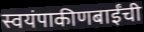
स्वयंपाकीणबाईंची